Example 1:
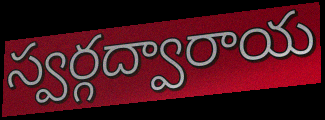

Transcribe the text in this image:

స్వర్గద్వారాయ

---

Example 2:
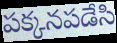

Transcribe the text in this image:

పక్కనపడేసి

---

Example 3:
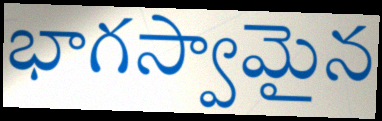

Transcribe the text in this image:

భాగస్వామైన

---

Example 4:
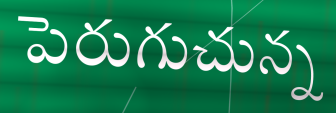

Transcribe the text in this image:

పెరుగుచున్న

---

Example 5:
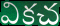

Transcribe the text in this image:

వికచ